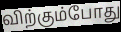
விற்கும்போது